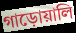
গাড়োয়ালি